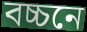
বচ্চনে